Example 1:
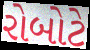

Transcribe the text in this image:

રોબોટે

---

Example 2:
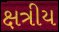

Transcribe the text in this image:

ક્ષત્રીય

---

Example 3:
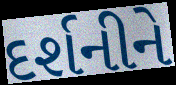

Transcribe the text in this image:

દર્શનીને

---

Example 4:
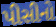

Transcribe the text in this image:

પીસીનો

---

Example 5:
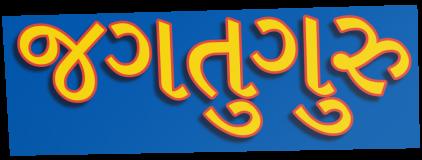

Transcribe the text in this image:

જગતુગુરુ